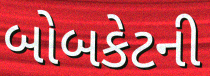
બોબકેટની